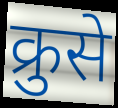
क्रुसे